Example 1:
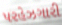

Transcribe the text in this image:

પરહેઝગારી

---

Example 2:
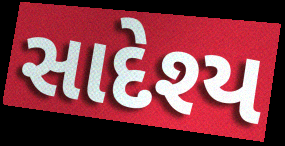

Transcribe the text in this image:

સાદેશ્ય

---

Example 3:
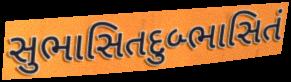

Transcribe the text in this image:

સુભાસિતદુબ્ભાસિતં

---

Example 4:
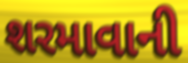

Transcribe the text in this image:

શરમાવાની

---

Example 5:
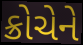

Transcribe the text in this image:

ક્રોચેને